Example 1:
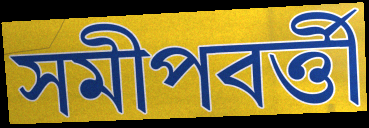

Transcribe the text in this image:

সমীপবর্ত্তী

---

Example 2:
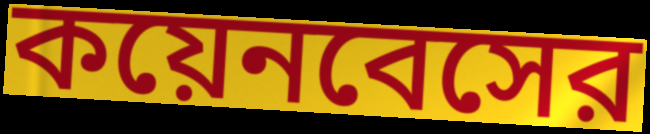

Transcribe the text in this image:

কয়েনবেসের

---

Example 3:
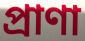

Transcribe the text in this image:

প্রাণা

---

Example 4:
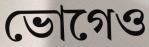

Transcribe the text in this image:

ভোগেও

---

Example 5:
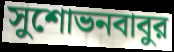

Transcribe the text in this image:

সুশোভনবাবুর